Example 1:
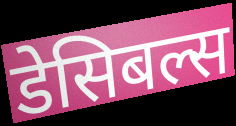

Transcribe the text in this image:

डेसिबल्स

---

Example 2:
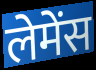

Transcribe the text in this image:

लेमेंस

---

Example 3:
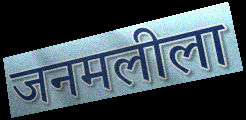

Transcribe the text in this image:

जनमलीला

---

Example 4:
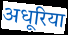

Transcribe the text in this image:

अधूरिया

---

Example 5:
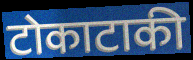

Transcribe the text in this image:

टोकाटाकी